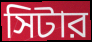
সিটার